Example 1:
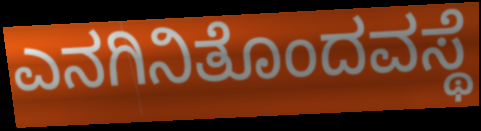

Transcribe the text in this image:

ಎನಗಿನಿತೊಂದವಸ್ಥೆ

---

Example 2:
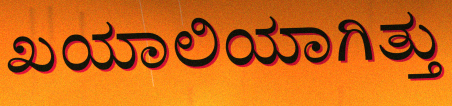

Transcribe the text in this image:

ಖಯಾಲಿಯಾಗಿತ್ತು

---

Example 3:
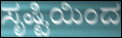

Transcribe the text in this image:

ಸೃಷ್ಟಿಯಿಂದ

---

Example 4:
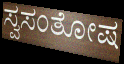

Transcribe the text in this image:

ಸ್ವಸಂತೋಷ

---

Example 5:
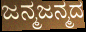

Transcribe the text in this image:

ಜನ್ಮಜನ್ಮದ